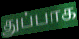
துப்பாக